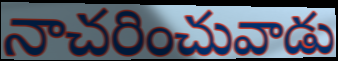
నాచరించువాడు